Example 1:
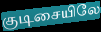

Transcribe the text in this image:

குடிசையிலே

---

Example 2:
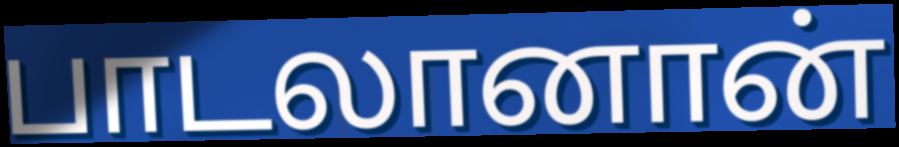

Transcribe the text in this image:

பாடலானான்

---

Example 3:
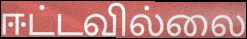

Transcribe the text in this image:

ஈட்டவில்லை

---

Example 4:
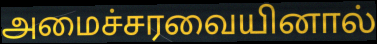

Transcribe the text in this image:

அமைச்சரவையினால்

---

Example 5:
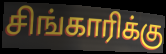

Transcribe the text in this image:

சிங்காரிக்கு